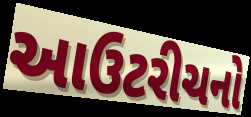
આઉટરીચનો